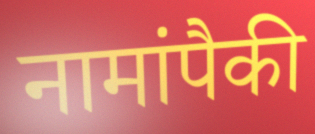
नामांपैकी